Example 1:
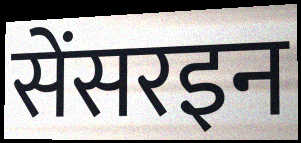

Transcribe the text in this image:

सेंसरइन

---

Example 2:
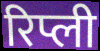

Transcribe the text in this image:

रिप्ली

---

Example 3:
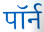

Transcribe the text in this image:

पॉर्न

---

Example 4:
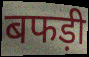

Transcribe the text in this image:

बफड़ी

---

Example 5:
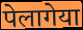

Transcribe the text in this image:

पेलागेया